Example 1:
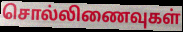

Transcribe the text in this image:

சொல்லிணைவுகள்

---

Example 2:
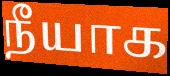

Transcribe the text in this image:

நீயாக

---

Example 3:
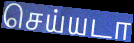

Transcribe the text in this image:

செய்யடா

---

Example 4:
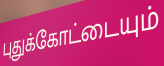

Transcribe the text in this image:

புதுக்கோட்டையும்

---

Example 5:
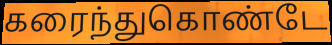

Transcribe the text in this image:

கரைந்துகொண்டே